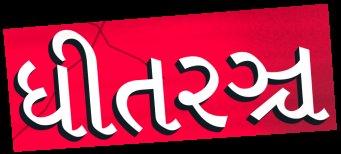
ધીતરઞ્ચ